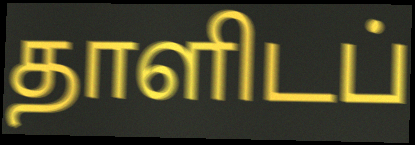
தாளிடப்